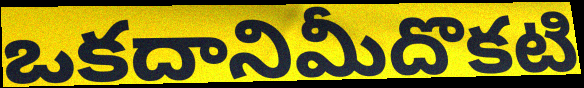
ఒకదానిమీదొకటి